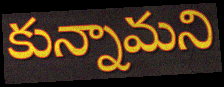
కున్నామని